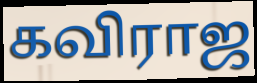
கவிராஜ